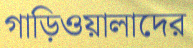
গাড়িওয়ালাদের